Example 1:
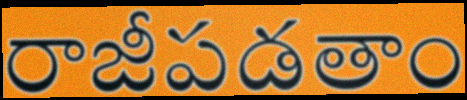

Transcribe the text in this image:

రాజీపడతాం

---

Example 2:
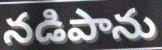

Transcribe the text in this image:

నడిపాను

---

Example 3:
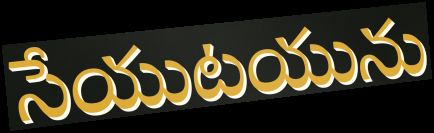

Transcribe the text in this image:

సేయుటయును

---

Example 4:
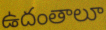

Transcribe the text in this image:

ఉదంతాలూ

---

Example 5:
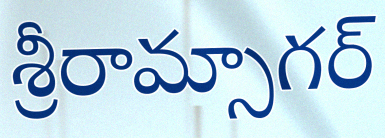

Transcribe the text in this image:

శ్రీరామ్సాగర్